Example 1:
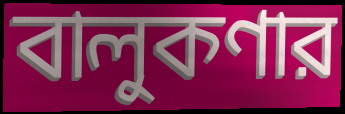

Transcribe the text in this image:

বালুকণার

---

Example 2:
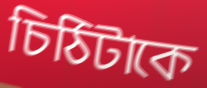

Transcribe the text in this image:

চিঠিটাকে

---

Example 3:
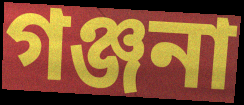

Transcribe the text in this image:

গঞ্জনা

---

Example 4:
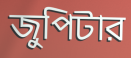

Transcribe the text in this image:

জুপিটার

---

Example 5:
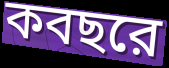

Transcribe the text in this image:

কবছরে